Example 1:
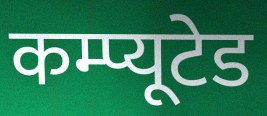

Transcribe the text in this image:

कम्प्यूटेड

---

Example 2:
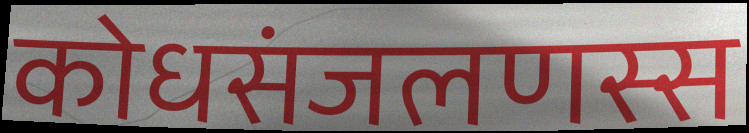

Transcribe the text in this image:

कोधसंजलणस्स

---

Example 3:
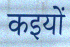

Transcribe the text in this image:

कइयों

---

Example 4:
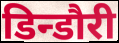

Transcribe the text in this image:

डिन्डौरी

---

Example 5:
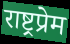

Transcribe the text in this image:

राष्ट्रप्रेम